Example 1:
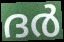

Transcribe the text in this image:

ദർ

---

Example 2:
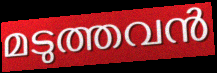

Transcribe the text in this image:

മടുത്തവൻ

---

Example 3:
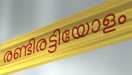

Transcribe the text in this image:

രണ്ടിരട്ടിയോളം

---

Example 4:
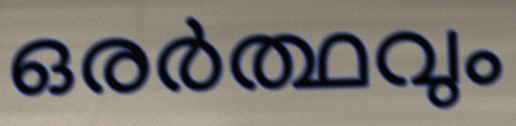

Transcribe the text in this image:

ഒരർത്ഥവും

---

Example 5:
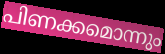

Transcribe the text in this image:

പിണക്കമൊന്നും